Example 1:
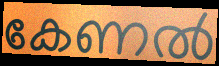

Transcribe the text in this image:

കേണൽ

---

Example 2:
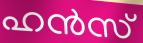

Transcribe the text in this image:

ഹൻസ്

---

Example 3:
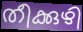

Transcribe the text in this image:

തീക്കുഴി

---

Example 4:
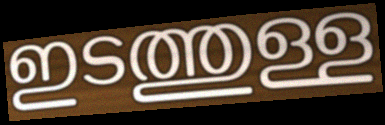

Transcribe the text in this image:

ഇടത്തുള്ള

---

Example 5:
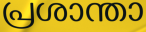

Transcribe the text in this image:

പ്രശാന്താ